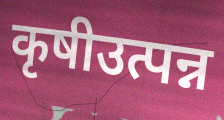
कृषीउत्पन्न